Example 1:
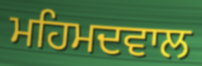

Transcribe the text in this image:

ਮਹਿਮਦਵਾਲ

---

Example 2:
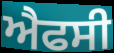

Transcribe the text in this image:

ਐਫਸੀ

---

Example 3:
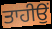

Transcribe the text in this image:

ਤਾਹੀਉਂ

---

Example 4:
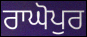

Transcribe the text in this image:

ਰਾਘੋਪੁਰ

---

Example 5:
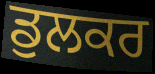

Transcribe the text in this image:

ਡੁਲਕਰ